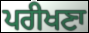
ਪਰੀਖਣਾ